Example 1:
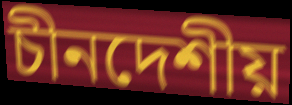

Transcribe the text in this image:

চীনদেশীয়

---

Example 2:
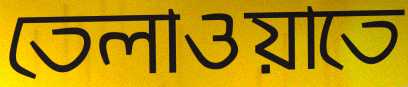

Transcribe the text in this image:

তেলাওয়াতে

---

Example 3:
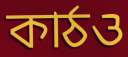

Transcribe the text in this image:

কাঠও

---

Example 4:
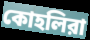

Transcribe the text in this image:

কোহলিরা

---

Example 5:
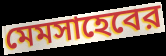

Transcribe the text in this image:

মেমসাহেবের